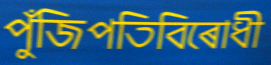
পুঁজিপতিবিৰোধী